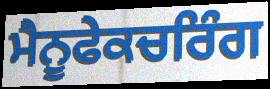
ਮੈਨੂਫੇਕਚਰਿੰਗ